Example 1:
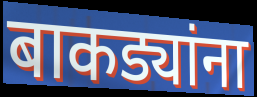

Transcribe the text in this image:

बाकड्यांना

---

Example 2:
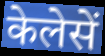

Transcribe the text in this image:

केलेसें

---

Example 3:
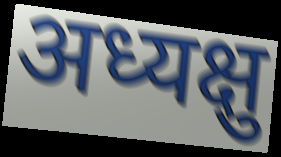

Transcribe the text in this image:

अध्यक्षु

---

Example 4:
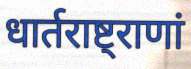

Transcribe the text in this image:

धार्तराष्ट्राणां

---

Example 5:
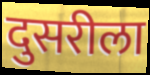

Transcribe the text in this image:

दुसरीला